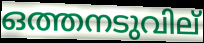
ഒത്തനടുവില്